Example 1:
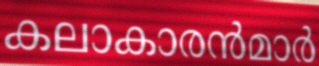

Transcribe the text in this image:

കലാകാരൻമാർ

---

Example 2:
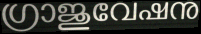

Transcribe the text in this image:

ഗ്രാജുവേഷനു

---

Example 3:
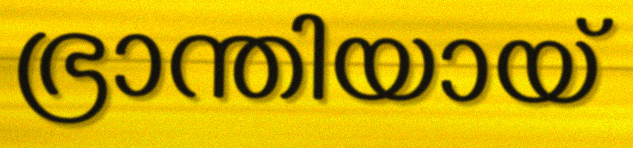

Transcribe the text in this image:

ഭ്രാന്തിയായ്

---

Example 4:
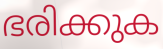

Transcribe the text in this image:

ഭരിക്കുക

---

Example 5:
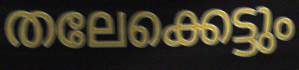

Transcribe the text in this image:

തലേക്കെട്ടും